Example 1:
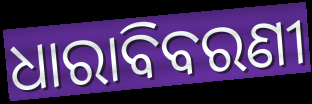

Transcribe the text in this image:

ଧାରାବିବରଣୀ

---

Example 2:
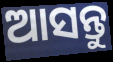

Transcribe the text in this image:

ଆସନ୍ତୁ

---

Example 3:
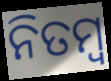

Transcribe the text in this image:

ନିତମ୍ୱ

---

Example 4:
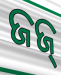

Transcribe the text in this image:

ଜଜ୍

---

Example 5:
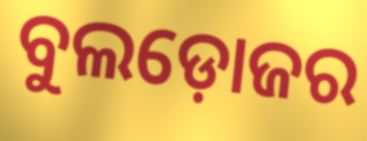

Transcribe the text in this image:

ବୁଲଡ଼ୋଜର